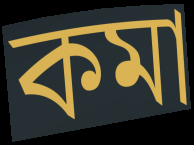
কমা